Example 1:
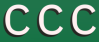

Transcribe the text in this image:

ccc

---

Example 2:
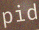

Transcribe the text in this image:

pid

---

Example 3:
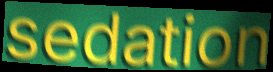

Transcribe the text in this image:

sedation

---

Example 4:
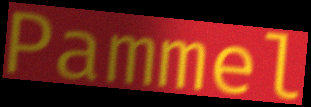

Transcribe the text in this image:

Pammel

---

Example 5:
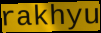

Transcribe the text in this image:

rakhyu